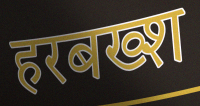
हरबख्श